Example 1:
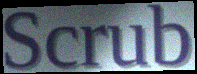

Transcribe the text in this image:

Scrub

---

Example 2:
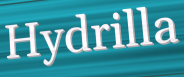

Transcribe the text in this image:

Hydrilla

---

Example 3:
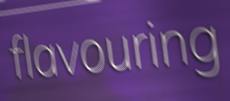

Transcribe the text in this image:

flavouring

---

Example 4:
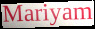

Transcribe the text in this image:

Mariyam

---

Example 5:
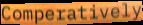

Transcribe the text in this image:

Comperatively